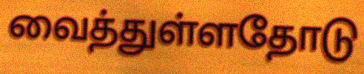
வைத்துள்ளதோடு